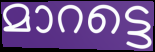
മാറട്ടെ